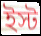
ইস্ট